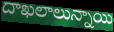
దాఖలాలున్నాయి